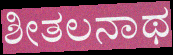
ಶೀತಲನಾಥ